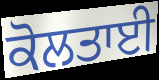
ਕੋਲਤਾਈ